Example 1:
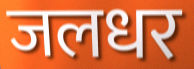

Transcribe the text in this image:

जलधर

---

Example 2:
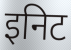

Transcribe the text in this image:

इनिट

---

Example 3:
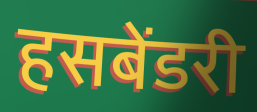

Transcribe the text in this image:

हसबेंडरी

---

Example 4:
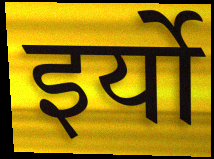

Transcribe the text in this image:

इर्यो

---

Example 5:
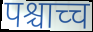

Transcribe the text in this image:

पश्चाच्च